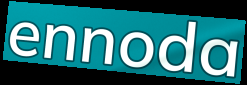
ennoda